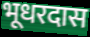
भूधरदास